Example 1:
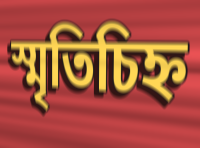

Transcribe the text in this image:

স্মৃতিচিহ্ন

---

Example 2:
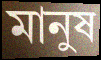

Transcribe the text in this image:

মানুষ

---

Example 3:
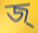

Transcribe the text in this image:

জ্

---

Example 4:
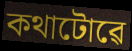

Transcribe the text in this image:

কথাটোৱে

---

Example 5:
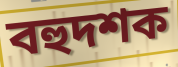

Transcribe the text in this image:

বহুদশক